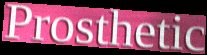
Prosthetic